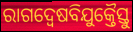
ରାଗଦ୍ୱେଷବିଯୁକ୍ତୈସ୍ତୁ